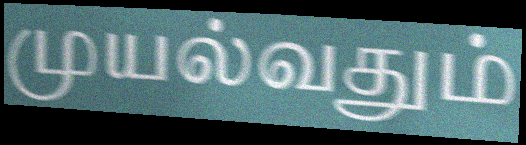
முயல்வதும்